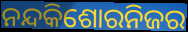
ନନ୍ଦକିଶୋରନିଜର